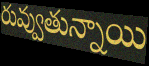
రువ్వుతున్నాయి